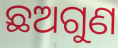
ଛଅଗୁଣ